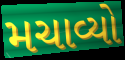
મચાવ્યો